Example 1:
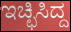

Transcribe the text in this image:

ಇಚ್ಛಿಸಿದ್ದ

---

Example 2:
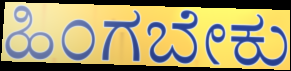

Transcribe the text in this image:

ಹಿಂಗಬೇಕು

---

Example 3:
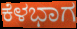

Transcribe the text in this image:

ಕೆಳಭಾಗ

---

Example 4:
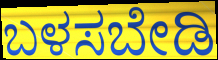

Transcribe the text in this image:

ಬಳಸಬೇಡಿ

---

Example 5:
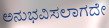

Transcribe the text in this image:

ಅನುಭವಿಸಲಾಗದೇ